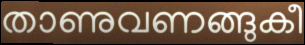
താണുവണങ്ങുകീ